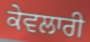
ਕੇਵਲਾਰੀ